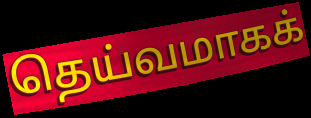
தெய்வமாகக்